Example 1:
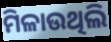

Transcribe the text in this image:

ମିଳାଉଥିଲି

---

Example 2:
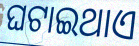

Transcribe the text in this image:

ଘଟାଇଥାଏ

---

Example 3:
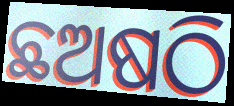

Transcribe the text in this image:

ଛଅଷଠି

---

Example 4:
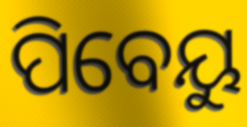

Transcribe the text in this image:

ପିବେୟୁ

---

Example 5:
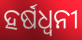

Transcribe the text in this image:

ହର୍ଷଧ୍ୱନୀ